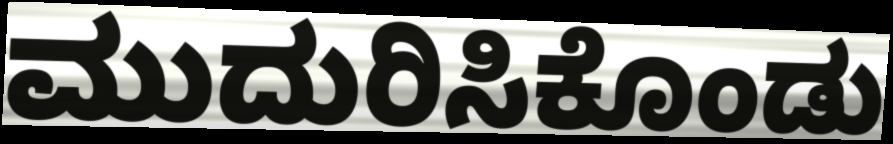
ಮುದುರಿಸಿಕೊಂಡು